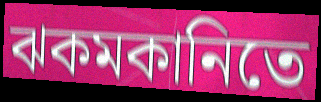
ঝকমকানিতে